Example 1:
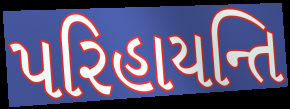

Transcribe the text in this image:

પરિહાયન્તિ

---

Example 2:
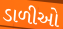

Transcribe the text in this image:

ડાળીઓ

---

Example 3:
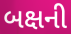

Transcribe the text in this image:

બક્ષની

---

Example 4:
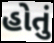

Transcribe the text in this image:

હોતું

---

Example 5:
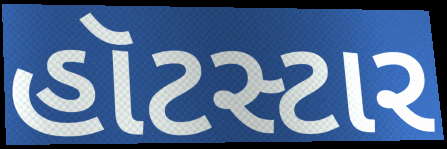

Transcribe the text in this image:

હૉટસ્ટાર